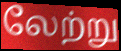
லேற்று